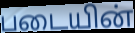
படையின்